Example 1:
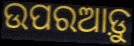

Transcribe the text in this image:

ଉପରଆଡ଼ୁ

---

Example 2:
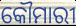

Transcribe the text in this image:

କୌମାରୀ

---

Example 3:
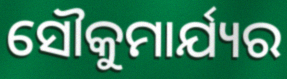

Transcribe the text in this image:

ସୌକୁମାର୍ଯ୍ୟର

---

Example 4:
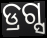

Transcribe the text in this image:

ଡ୍ରଗ୍ସ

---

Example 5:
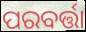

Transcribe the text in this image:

ପରବର୍ତ୍ତା